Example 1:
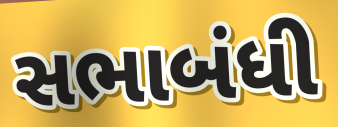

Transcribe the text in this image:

સભાબંધી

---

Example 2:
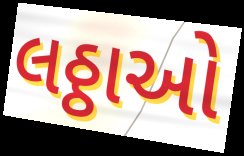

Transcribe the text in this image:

લઠ્ઠાઓ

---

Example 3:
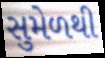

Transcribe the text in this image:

સુમેળથી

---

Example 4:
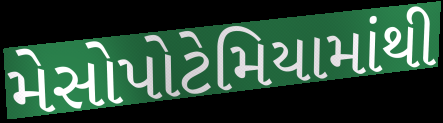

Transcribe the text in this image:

મેસોપોટેમિયામાંથી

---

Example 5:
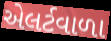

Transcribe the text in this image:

એલર્ટવાળા